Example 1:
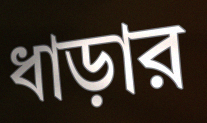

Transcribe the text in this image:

ধাড়ার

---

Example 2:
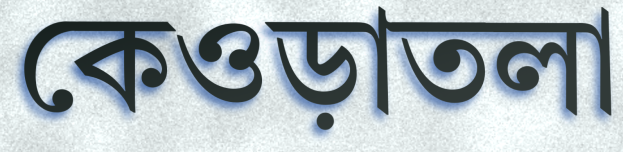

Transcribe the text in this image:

কেওড়াতলা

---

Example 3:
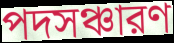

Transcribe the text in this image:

পদসঞ্চারণ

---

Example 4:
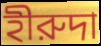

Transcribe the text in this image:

হীরুদা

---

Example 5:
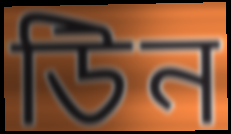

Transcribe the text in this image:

উিন